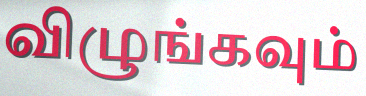
விழுங்கவும்